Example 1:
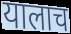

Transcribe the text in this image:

यालाच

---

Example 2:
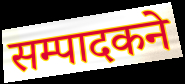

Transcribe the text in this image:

सम्पादकने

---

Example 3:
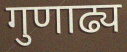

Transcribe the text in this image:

गुणाढ्य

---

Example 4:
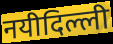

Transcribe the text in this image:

नयीदिल्ली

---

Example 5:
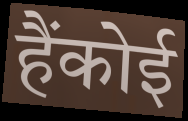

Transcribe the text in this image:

हैंकोई